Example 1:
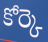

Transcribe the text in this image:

కోర్కె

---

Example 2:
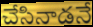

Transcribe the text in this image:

చేసినాడనే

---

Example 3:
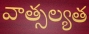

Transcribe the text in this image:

వాత్సల్యత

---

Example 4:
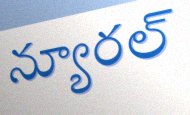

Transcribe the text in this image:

న్యూరల్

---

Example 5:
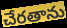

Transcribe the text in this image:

చేరతాను